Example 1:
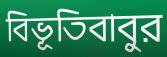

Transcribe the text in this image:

বিভূতিবাবুর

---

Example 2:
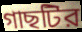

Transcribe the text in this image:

গাছটির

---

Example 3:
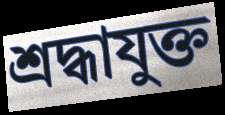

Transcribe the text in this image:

শ্রদ্ধাযুক্ত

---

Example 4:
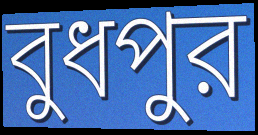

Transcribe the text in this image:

বুধপুর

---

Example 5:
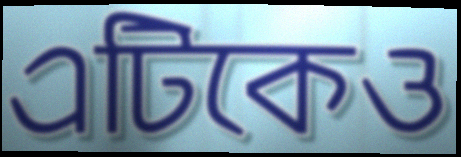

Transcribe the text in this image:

এটিকেও